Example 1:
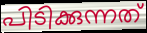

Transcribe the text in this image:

പിടിക്കുന്നത്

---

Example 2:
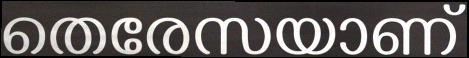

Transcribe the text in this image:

തെരേസയാണ്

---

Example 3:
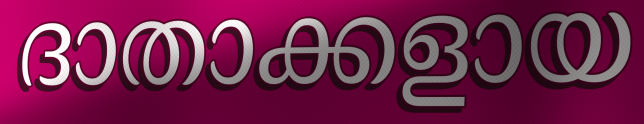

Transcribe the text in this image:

ദാതാക്കളായ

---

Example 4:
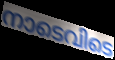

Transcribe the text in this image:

നാടെവിടെ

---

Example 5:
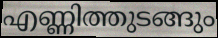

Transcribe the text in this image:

എണ്ണിത്തുടങ്ങും